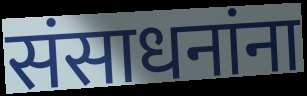
संसाधनांना